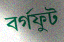
বৰ্গফুট